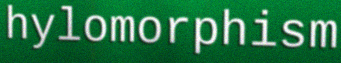
hylomorphism